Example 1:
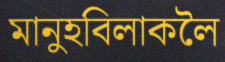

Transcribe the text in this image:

মানুহবিলাকলৈ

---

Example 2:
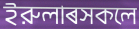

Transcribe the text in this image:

ইৰুলাৰসকলে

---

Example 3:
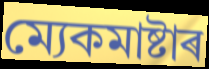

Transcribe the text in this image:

ম্যেকমাষ্টাৰ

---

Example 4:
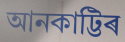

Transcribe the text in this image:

আনকাট্টিৰ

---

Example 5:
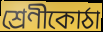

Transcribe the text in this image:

শ্ৰেণীকোঠা